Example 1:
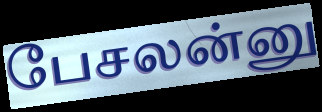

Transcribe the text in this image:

பேசலன்னு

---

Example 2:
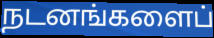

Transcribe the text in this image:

நடனங்களைப்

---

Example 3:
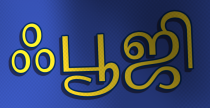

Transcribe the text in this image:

ஃபூஜி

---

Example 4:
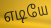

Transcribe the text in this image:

எடியே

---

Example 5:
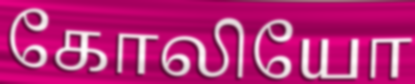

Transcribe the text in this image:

கோலியோ